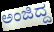
ಅಂಜಿದ್ದ